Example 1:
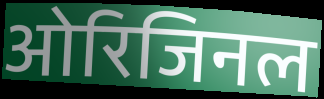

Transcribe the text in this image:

ओरिजिनल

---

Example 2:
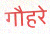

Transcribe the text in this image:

गौहरे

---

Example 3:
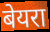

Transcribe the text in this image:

बेयरा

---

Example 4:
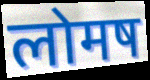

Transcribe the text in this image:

लोमष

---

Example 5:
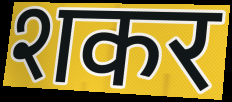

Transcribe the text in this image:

शकर